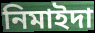
নিমাইদা